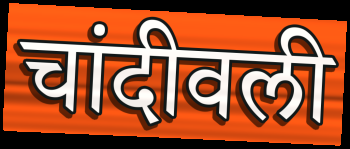
चांदीवली